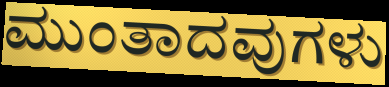
ಮುಂತಾದವುಗಳು